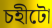
চহীটো